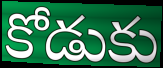
కోడుకు